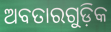
ଅବତାରଗୁଡ଼ିକ